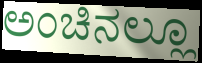
ಅಂಚಿನಲ್ಲೂ